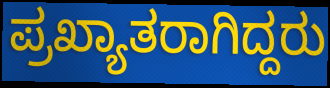
ಪ್ರಖ್ಯಾತರಾಗಿದ್ದರು